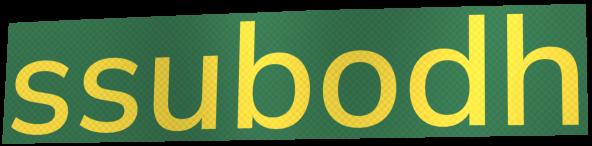
ssubodh